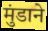
मुंडाने